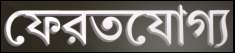
ফেরতযোগ্য